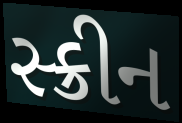
સ્ક્રીન